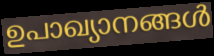
ഉപാഖ്യാനങ്ങൾ